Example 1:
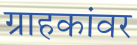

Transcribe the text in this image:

ग्राहकांवर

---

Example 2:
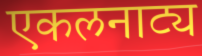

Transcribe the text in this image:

एकलनाट्य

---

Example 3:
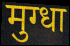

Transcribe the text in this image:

मुग्धा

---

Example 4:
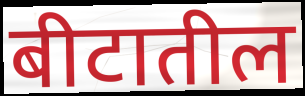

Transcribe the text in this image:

बीटातील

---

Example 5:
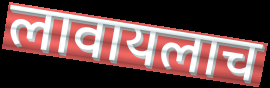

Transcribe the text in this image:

लावायलाच